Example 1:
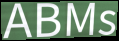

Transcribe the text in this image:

ABMs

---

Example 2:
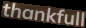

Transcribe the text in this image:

thankfull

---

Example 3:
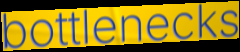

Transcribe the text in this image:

bottlenecks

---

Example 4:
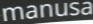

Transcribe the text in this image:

manusa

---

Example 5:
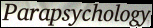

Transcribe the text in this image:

Parapsychology